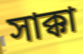
সাক্কা